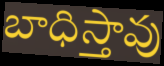
బాధిస్తావు